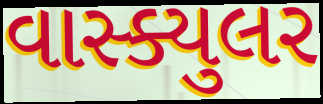
વાસ્ક્યુલર